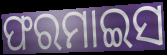
ଫରମାଇସ